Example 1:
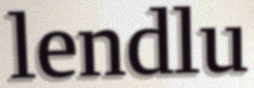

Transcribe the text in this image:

lendlu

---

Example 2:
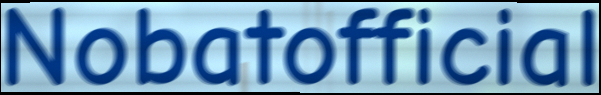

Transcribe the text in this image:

Nobatofficial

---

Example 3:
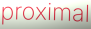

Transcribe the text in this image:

proximal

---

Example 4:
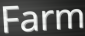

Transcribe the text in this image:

Farm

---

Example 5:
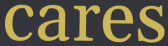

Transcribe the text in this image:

cares